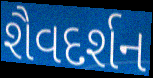
શૈવદર્શન